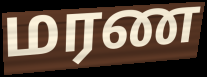
மரண